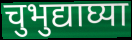
चुभुद्याघ्या